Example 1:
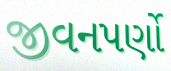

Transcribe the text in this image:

જીવનપર્ણો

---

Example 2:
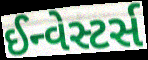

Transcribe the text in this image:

ઈન્વેસ્ટર્સ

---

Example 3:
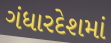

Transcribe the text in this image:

ગંધારદેશમાં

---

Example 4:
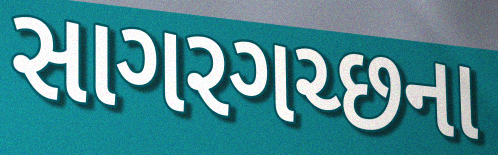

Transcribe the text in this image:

સાગરગચ્છના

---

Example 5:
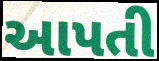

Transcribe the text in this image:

આપતી